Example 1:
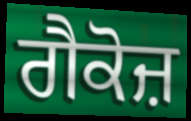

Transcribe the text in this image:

ਗੈਕੋਜ਼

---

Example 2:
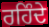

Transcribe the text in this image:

ਰਹਿੰਦੇ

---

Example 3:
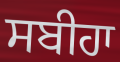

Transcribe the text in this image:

ਸਬੀਹਾ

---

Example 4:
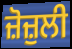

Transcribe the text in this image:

ਜ਼ੋਜ਼ੁਲੀ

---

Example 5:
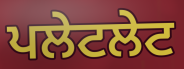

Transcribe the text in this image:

ਪਲੇਟਲੇਟ